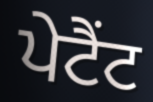
ਪੇਟੈਂਟ